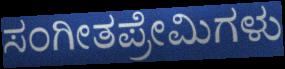
ಸಂಗೀತಪ್ರೇಮಿಗಳು